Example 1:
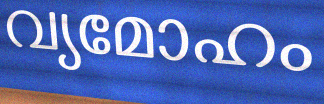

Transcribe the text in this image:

വ്യമോഹം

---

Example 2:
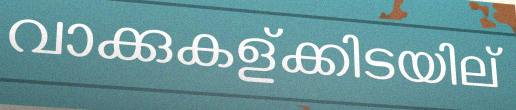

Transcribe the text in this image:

വാക്കുകള്ക്കിടയില്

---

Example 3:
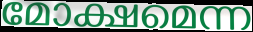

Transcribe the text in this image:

മോക്ഷമെന്ന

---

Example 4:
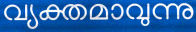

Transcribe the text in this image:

വ്യക്തമാവുന്നു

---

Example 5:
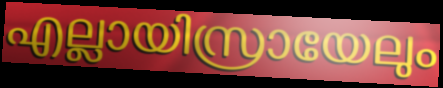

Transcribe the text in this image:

എല്ലായിസ്രായേലും